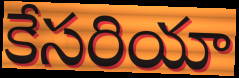
కేసరియా